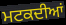
ਮਟਕਦੀਆਂ